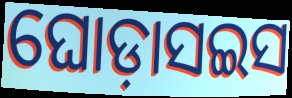
ଘୋଡ଼ାସଇସ